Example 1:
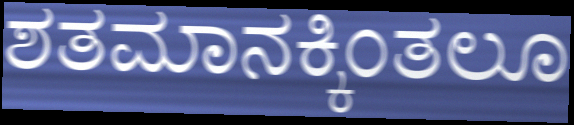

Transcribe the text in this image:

ಶತಮಾನಕ್ಕಿಂತಲೂ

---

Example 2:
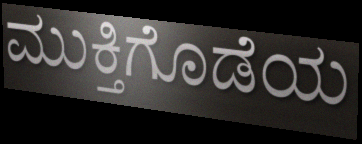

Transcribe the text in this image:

ಮುಕ್ತಿಗೊಡೆಯ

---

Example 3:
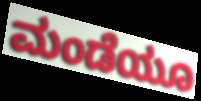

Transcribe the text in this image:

ಮಂಡೆಯೂ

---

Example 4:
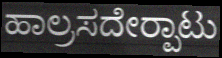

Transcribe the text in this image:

ಹಾಲ್ರಸದೇರ‍್ಪಾಟು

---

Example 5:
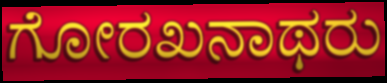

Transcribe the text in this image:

ಗೋರಖನಾಥರು